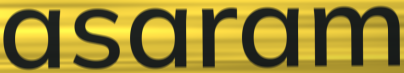
asaram